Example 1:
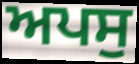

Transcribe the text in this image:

ਅਪਸੁ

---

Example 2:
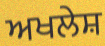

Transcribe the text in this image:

ਅਖਲੇਸ਼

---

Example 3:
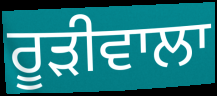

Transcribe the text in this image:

ਰੂਡ਼ੀਵਾਲਾ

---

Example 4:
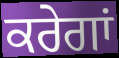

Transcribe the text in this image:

ਕਰੇਗਾਂ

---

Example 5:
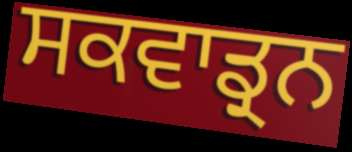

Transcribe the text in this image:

ਸਕਵਾਡ੍ਰਨ